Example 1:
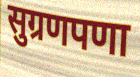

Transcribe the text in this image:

सुग्रणपणा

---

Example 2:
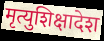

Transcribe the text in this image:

मृत्युशिक्षादेश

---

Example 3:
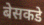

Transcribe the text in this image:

बेसकडे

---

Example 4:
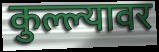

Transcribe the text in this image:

कुल्ल्यावर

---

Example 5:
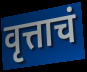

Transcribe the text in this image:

वृत्ताचं